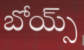
బోయ్స్